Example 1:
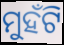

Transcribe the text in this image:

ମୁହଁଟି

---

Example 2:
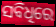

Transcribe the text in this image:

ସବିଧିରେ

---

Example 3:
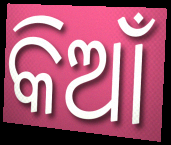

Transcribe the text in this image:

କିଆଁ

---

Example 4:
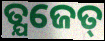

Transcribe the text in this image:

ତ୍ଯଜେତ୍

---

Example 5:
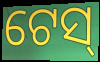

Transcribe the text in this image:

ଟେସ୍